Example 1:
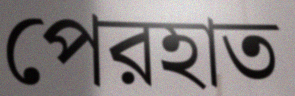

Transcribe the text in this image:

পেরহাত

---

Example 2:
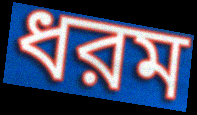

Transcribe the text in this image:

ধরম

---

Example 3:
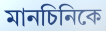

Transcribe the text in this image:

মানচিনিকে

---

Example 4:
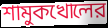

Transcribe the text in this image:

শামুকখোলের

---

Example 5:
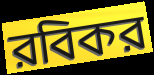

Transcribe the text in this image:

রবিকর